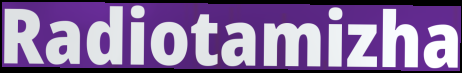
Radiotamizha